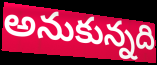
అనుకున్నది